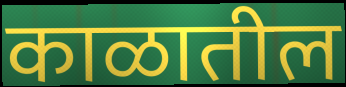
काळातील